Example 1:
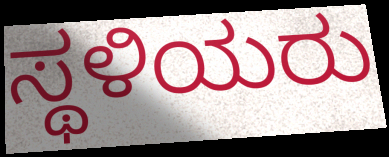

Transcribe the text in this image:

ಸ್ಥಳಿಯರು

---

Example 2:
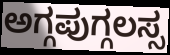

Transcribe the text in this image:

ಅಗ್ಗಪುಗ್ಗಲಸ್ಸ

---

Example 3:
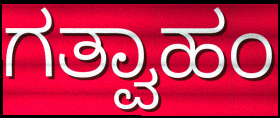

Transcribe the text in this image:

ಗತ್ವಾಹಂ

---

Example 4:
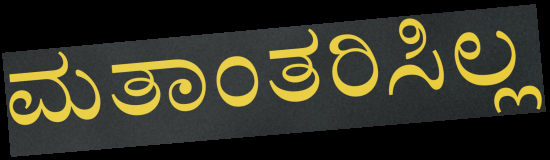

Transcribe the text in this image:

ಮತಾಂತರಿಸಿಲ್ಲ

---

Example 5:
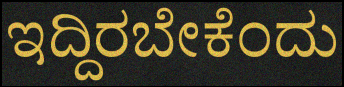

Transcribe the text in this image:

ಇದ್ದಿರಬೇಕೆಂದು